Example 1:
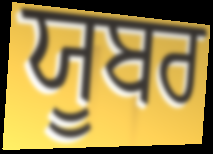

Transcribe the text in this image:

ਯੂਬਰ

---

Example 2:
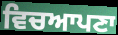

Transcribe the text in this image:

ਵਿਚਆਪਣਾ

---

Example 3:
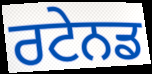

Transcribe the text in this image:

ਰਟੇਨਡ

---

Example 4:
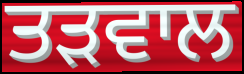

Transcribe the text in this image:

ਤੜਵਾਲ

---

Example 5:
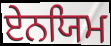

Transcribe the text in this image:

ਏਨਯਿਮ